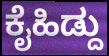
ಕೈಹಿಡ್ದು